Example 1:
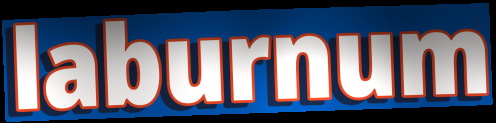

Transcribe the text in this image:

laburnum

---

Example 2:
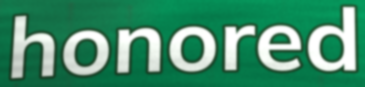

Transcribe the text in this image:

honored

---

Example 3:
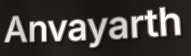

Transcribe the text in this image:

Anvayarth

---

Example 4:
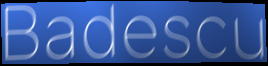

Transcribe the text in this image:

Badescu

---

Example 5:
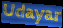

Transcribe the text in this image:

Udayar